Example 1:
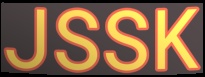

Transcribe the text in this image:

JSSK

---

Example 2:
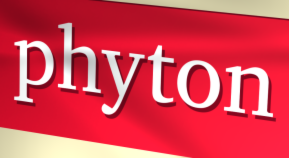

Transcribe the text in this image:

phyton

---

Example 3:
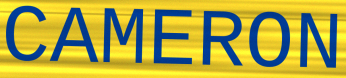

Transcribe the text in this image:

CAMERON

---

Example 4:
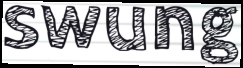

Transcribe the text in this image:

swung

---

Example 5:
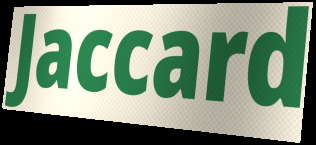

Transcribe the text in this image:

Jaccard